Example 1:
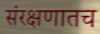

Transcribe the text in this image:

संरक्षणातच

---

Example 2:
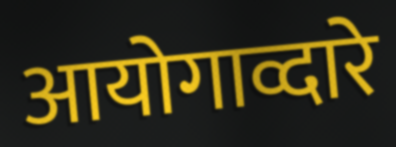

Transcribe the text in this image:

आयोगाव्दारे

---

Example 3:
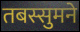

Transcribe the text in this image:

तबस्सुमने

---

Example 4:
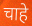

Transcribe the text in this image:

चाहे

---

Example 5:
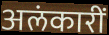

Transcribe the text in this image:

अलंकारीं